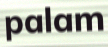
palam